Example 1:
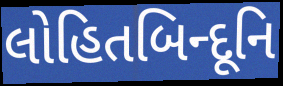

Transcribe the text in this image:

લોહિતબિન્દૂનિ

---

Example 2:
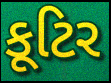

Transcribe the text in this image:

કૂટિર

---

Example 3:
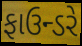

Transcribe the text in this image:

ફાઉન્ડરે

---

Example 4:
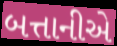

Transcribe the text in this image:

બત્તાનીએ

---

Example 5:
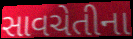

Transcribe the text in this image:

સાવચેતીના